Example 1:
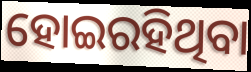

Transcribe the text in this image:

ହୋଇରହିଥିବା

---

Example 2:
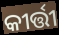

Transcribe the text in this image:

କୀର୍ତ୍ତୀ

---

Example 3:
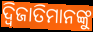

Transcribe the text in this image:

ଦ୍ୱିଜାତିମାନଙ୍କୁ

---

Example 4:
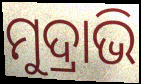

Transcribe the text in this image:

ମୁଦ୍ରାଭି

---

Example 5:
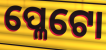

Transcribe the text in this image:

ପ୍ଳେଟୋ